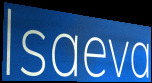
Isaeva